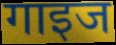
गाइज